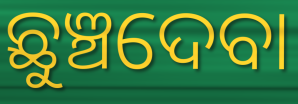
ଛୁଞ୍ଚଦେବା